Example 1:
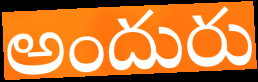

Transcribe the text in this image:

అందురు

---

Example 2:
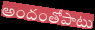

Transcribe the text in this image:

అందంతోపాటు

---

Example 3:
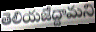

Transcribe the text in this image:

తెలియజేద్దామని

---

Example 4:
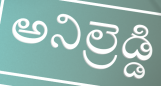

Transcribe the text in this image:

అనిల్రెడ్డి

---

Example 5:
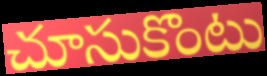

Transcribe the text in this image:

చూసుకొంటు